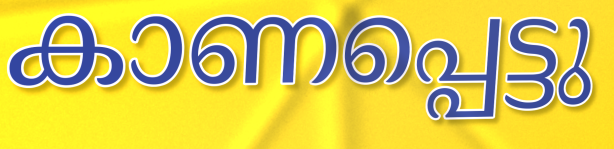
കാണപ്പെട്ടു